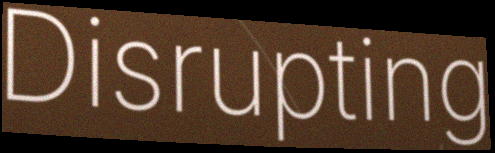
Disrupting